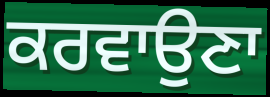
ਕਰਵਾਉਣਾ